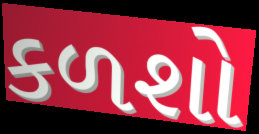
કળશો